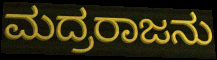
ಮದ್ರರಾಜನು